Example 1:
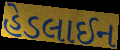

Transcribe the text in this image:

હેડલાઈન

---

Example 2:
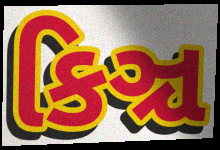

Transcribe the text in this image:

કિઞ્ચ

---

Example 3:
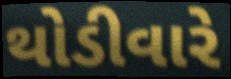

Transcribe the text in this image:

થોડીવારે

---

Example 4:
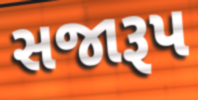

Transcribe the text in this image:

સજારૂપ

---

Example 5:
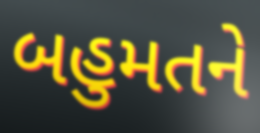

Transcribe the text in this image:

બહુમતને